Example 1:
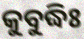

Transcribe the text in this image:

କୁବୁଦ୍ଧିଃ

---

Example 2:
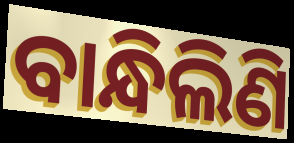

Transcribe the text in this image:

ବାନ୍ଧିଲିଣି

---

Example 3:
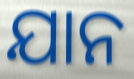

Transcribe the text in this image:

ଯାନ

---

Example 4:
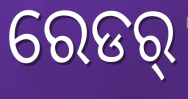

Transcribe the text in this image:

ରେଡର୍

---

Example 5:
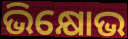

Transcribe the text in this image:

ଭିକ୍ଷୋଭ